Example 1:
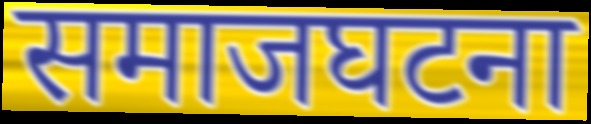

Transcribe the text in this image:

समाजघटना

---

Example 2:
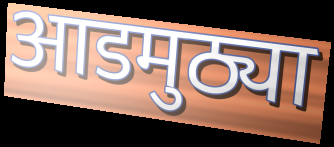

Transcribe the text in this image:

आडमुठ्या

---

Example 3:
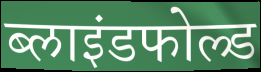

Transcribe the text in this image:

ब्लाइंडफोल्ड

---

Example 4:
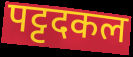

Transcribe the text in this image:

पट्टदकल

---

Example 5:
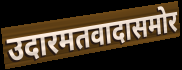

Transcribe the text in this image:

उदारमतवादासमोर